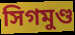
সিগমুণ্ড